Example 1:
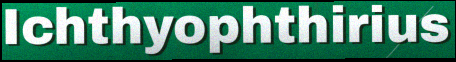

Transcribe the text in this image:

Ichthyophthirius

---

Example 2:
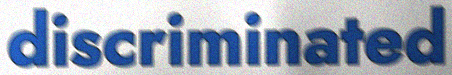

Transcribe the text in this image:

discriminated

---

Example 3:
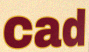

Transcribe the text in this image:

cad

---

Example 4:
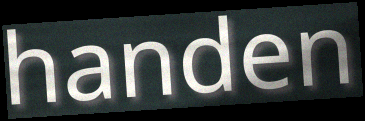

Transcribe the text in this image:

handen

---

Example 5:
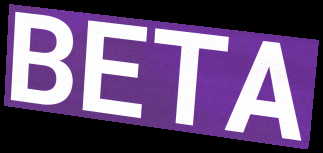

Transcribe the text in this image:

BETA